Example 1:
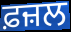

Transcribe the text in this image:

ਫ਼ਜ਼ਲ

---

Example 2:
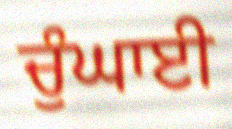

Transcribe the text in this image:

ਚੁੰਘਾਈ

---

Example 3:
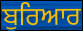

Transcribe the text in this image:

ਬੁਰਿਆਰ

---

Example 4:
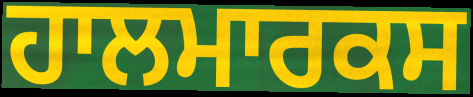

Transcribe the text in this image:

ਹਾਲਮਾਰਕਸ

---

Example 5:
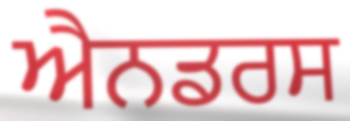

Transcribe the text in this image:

ਐਨਡਰਸ